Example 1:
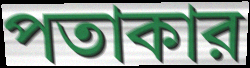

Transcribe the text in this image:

পতাকার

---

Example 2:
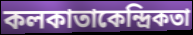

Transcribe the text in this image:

কলকাতাকেন্দ্রিকতা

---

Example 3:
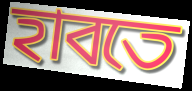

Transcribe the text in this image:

হাবতে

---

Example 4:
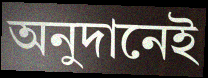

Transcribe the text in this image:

অনুদানেই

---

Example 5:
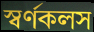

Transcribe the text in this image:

স্বর্ণকলস